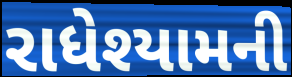
રાધેશ્યામની